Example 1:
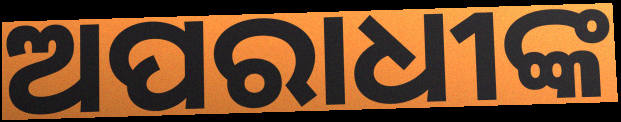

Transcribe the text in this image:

ଅପରାଧୀଙ୍କ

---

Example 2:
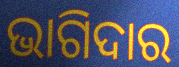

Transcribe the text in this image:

ଭାଗିଦାର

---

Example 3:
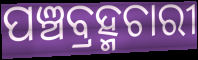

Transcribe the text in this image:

ପଞ୍ଚବ୍ରହ୍ମଚାରୀ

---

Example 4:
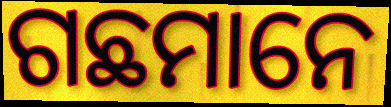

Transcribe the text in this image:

ଗଛମାନେ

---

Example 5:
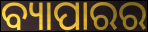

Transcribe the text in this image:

ବ୍ୟାପାରର